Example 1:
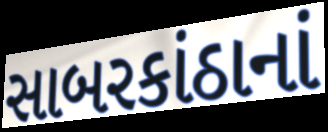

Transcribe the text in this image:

સાબરકાંઠાનાં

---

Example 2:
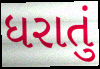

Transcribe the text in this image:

ધરાતું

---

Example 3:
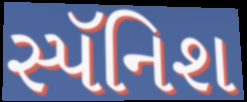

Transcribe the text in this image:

સ્પૅનિશ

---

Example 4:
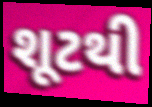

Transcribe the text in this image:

શૂટથી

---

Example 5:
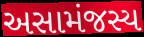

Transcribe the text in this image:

અસામંજસ્ય